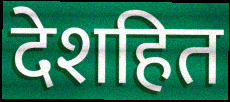
देशहित